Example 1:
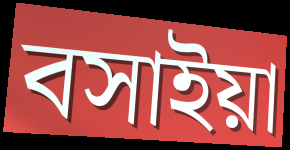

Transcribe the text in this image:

বসাইয়া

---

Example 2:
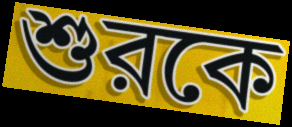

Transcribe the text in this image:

শুরকে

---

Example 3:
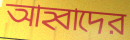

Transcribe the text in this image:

আহ্বাদের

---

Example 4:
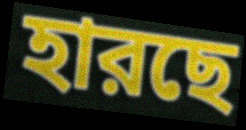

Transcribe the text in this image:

হারছে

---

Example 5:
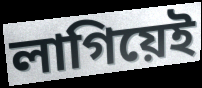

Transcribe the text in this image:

লাগিয়েই